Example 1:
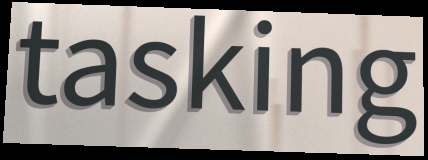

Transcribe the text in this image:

tasking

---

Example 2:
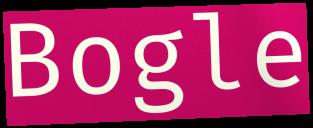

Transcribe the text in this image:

Bogle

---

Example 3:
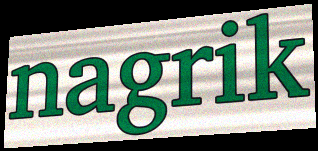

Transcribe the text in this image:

nagrik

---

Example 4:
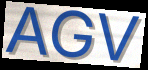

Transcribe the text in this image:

AGV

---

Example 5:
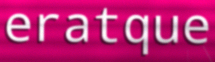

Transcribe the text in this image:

eratque